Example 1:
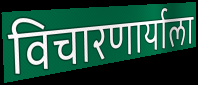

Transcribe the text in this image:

विचारणार्याला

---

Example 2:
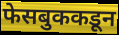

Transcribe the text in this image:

फेसबुककडून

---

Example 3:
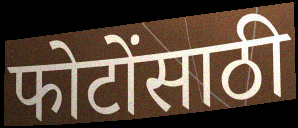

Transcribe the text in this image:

फोटोंसाठी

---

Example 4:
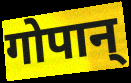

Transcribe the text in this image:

गोपान्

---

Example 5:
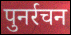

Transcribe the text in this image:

पुनर्रचन